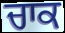
ਚਾਕ